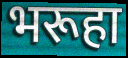
भरूहा